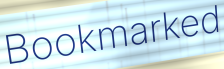
Bookmarked